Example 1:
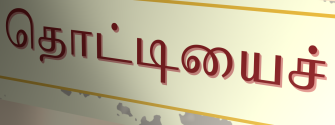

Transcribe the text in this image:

தொட்டியைச்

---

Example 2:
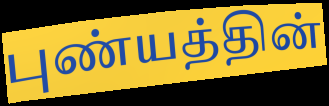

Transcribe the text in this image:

புண்யத்தின்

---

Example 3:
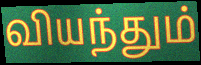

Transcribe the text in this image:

வியந்தும்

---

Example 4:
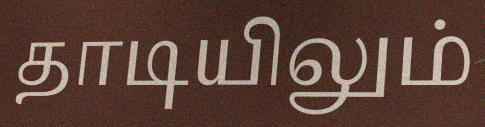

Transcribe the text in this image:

தாடியிலும்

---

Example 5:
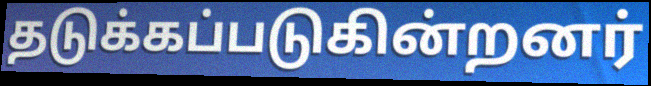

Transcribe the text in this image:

தடுக்கப்படுகின்றனர்